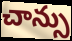
చాన్సు